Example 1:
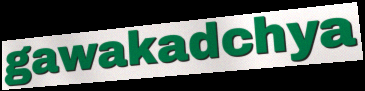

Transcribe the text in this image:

gawakadchya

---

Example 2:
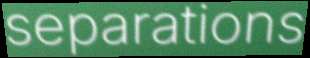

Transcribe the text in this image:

separations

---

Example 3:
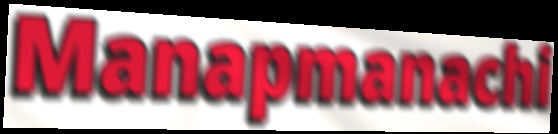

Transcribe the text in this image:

Manapmanachi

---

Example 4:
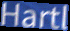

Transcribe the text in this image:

Hartl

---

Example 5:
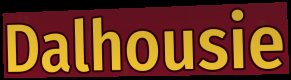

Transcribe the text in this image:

Dalhousie